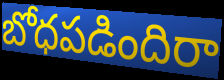
బోధపడిందిరా